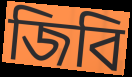
জিবি